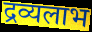
द्रव्यलाभ